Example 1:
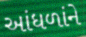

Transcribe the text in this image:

આંધળાંને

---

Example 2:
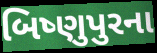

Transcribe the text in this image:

બિષ્ણુપુરના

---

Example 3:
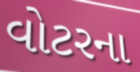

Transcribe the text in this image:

વોટરના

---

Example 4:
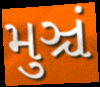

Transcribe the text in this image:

મુઞ્ચં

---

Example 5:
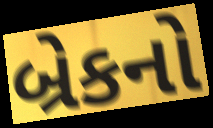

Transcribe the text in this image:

બ્રેકનો